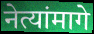
नेत्यांमागे